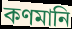
কণমানি